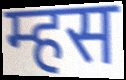
म्हस